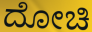
ದೋಚಿ